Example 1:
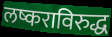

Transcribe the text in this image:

लष्कराविरुद्ध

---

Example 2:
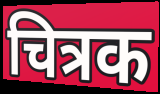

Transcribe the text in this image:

चित्रक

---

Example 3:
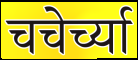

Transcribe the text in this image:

चचेर्च्या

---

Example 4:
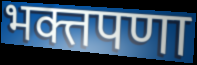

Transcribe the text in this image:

भक्तपणा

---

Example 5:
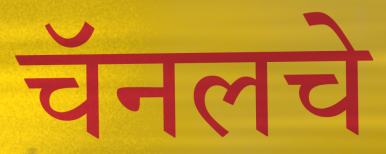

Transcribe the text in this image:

चॅनलचे